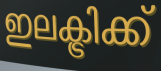
ഇലക്ട്രിക്ക്